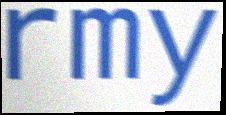
rmy